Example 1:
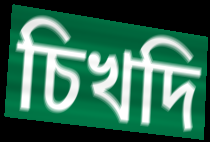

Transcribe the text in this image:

চিখদি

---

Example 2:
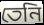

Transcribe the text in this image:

তেনি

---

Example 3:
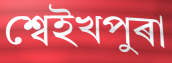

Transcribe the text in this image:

শ্বেইখপুৰা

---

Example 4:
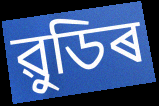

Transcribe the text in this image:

ৱুডিৰ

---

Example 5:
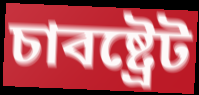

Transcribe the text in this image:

চাবষ্ট্ৰেট